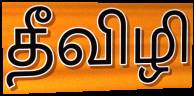
தீவிழி